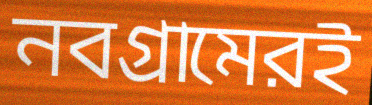
নবগ্রামেরই